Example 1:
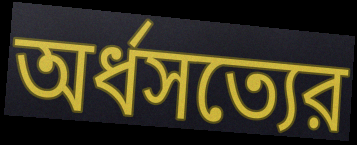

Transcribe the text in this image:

অর্ধসত্যের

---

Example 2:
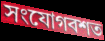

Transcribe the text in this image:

সংযোগবশত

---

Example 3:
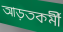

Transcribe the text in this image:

আড়তকর্মী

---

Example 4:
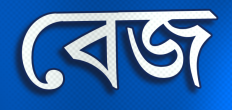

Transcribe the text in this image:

বেজ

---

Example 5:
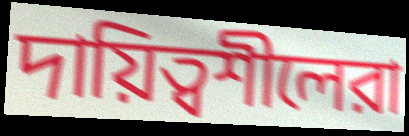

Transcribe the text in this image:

দায়িত্বশীলেরা